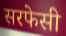
सरफेसी